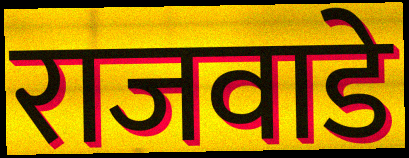
राजवाडे